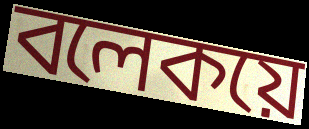
বলেকয়ে